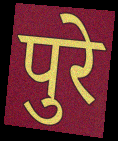
पुरे